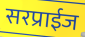
सरप्राईज